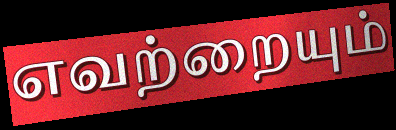
எவற்றையும்